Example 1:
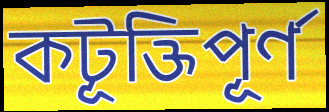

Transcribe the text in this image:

কটূক্তিপূর্ণ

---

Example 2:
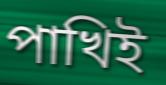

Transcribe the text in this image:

পাখিই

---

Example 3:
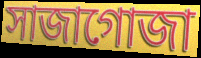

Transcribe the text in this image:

সাজাগোজা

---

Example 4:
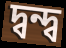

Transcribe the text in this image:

দ্বন্দ্ব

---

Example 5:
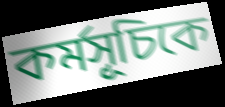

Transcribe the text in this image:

কর্মসূচিকে